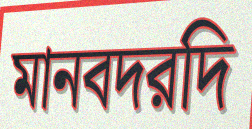
মানবদরদি